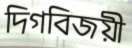
দিগবিজয়ী